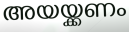
അയയ്ക്കണം